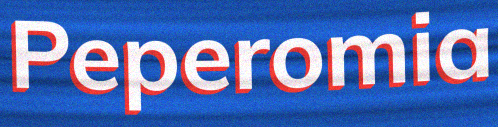
Peperomia